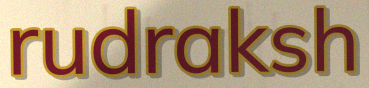
rudraksh